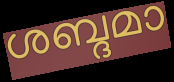
ശബ്ദമാ